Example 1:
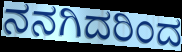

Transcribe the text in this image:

ನನಗಿದರಿಂದ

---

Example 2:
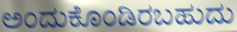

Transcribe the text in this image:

ಅಂದುಕೊಂಡಿರಬಹುದು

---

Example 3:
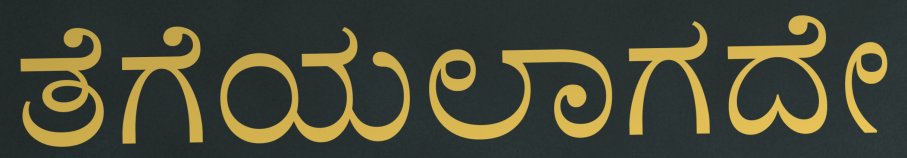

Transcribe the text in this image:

ತೆಗೆಯಲಾಗದೇ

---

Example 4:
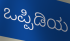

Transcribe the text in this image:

ಒಪ್ಪಿಡಿಯ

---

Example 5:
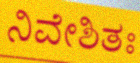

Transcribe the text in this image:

ನಿವೇಶಿತಃ